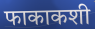
फाकाकशी